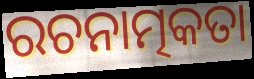
ରଚନାତ୍ମକତା